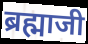
ब्रह्माजी